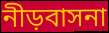
নীড়বাসনা